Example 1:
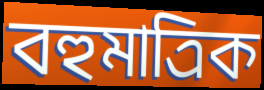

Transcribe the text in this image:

বহুমাত্ৰিক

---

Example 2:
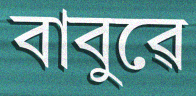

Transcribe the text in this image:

বাবুৱে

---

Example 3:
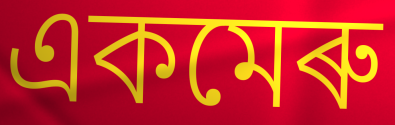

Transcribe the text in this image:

একমেৰু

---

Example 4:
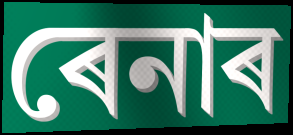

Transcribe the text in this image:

ৰেনাৰ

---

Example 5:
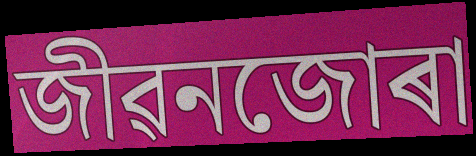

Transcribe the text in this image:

জীৱনজোৰা